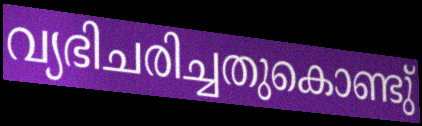
വ്യഭിചരിച്ചതുകൊണ്ടു്